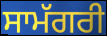
ਸਾਮੱਗਰੀ